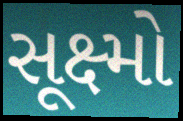
સૂક્ષ્મો